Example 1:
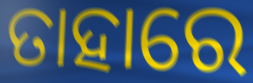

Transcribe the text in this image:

ତାହାରେ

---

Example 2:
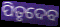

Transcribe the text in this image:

ପିତୃଦେବ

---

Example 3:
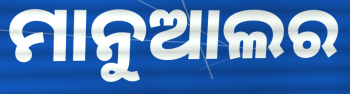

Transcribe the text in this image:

ମାନୁଆଲର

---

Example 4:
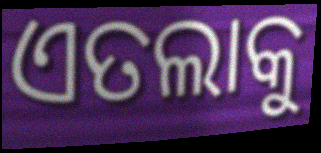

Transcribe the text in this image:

ଏତଲାକୁ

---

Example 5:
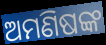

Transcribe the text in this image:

ଅମଣିଷଙ୍କ